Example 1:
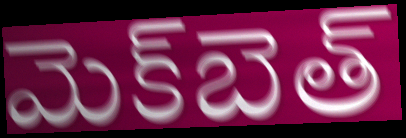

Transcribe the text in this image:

మెక్‌బెత్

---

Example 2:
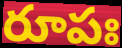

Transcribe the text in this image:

రూపః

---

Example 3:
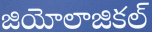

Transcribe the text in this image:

జియోలాజికల్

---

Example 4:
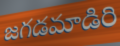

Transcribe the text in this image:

జగడమాడిరి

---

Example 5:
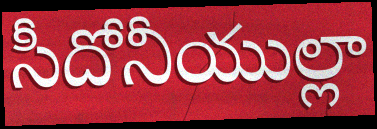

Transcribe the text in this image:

సీదోనీయుల్లా